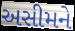
અસીમને